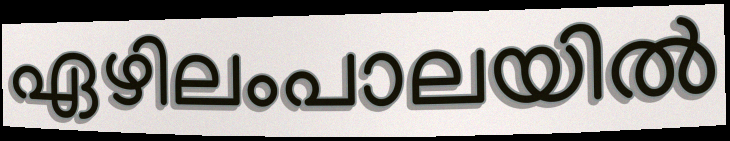
ഏഴിലംപാലയിൽ